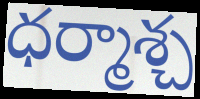
ధర్మాశ్చ